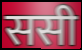
ससी